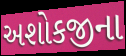
અશોકજીના